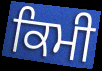
ਕਿਮੀ